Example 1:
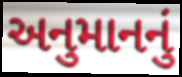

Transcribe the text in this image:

અનુમાનનું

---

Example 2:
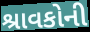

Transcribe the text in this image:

શ્રાવકોની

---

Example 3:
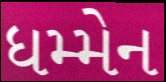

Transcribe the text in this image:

ધમ્મેન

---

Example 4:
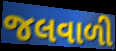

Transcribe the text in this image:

જલવાળી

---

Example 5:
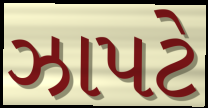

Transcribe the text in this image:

ઝાપટે